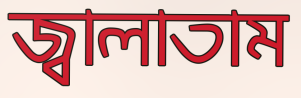
জ্বালাতাম